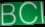
BCl